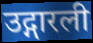
उद्गारली